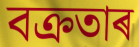
বক্ৰতাৰ